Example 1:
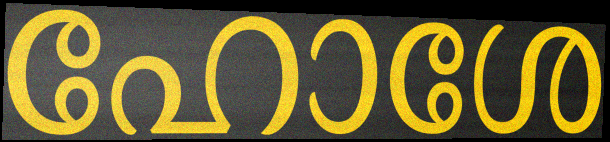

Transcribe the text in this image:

ഹോശേ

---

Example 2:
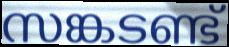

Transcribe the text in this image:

സങ്കടണ്ട്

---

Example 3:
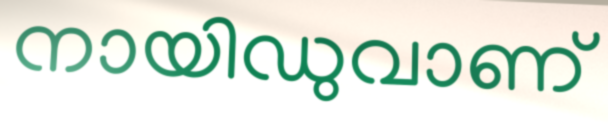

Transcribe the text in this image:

നായിഡുവാണ്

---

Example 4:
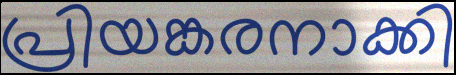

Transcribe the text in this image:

പ്രിയങ്കരനാക്കി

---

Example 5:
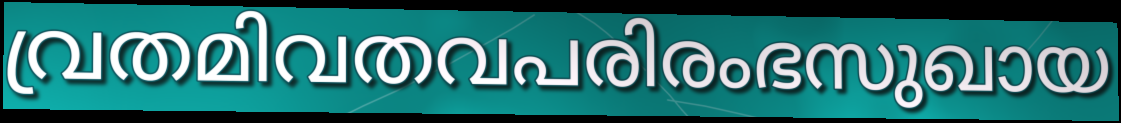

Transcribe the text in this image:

വ്രതമിവതവപരിരംഭസുഖായ